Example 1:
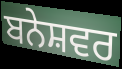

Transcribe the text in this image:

ਬਨੇਸ਼ਵਰ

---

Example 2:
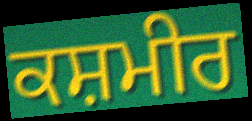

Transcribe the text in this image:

ਕਸ਼ਮੀਰ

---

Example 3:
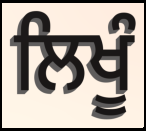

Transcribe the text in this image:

ਲਿਖੂੰ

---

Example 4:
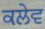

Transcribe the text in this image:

ਕਲੇਵ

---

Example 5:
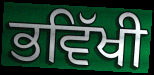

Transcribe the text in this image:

ਭਵਿੱਖੀ